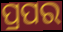
ପ୍ରପର